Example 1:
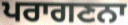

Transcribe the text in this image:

ਪਰਾਗਣਨਾ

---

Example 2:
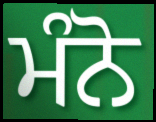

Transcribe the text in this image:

ਮੰਨੋ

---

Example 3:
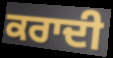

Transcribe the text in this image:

ਕਰਾਦੀ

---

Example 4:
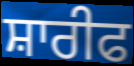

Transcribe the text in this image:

ਸ਼ਾਰੀਫ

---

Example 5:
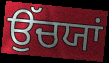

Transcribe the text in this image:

ਉੱਚਯਾਂ